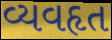
વ્યવહૃત